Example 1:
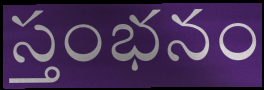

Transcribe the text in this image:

స్తంభనం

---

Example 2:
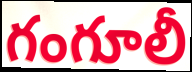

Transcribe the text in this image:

గంగూలీ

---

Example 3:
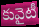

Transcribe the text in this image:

కువైటీ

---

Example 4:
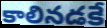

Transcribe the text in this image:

కాలినడకే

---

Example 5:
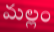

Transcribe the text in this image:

మల్లం